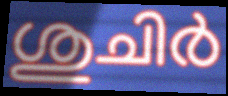
ശുചിർ